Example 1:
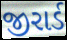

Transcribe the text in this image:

જીરાર્ડ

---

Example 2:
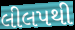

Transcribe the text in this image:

લીલપથી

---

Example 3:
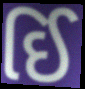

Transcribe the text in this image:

ઈિ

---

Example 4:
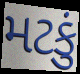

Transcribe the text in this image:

મટકું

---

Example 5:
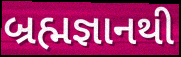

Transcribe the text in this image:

બ્રહ્મજ્ઞાનથી